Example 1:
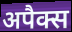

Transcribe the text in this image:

अपैक्स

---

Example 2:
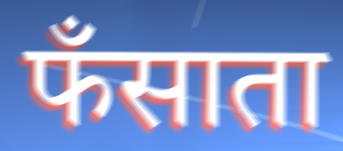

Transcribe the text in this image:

फँसाता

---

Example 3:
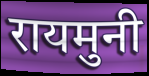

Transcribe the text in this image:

रायमुनी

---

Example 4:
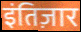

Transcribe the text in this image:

इंतिज़ार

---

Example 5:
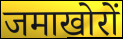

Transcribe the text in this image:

जमाखोरों